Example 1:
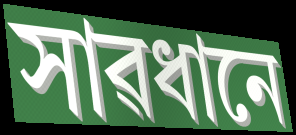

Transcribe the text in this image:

সাৱধানে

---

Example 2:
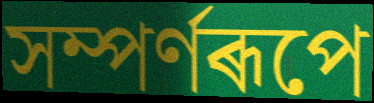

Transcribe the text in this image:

সম্পৰ্ণৰূপে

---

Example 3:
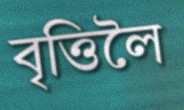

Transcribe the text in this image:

বৃত্তিলৈ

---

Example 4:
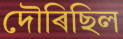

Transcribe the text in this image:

দৌৰিছিল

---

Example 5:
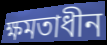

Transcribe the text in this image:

ক্ষমতাধীন